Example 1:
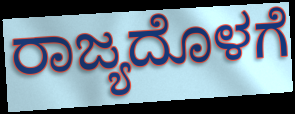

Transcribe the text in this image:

ರಾಜ್ಯದೊಳಗೆ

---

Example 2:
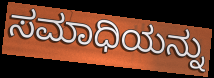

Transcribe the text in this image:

ಸಮಾಧಿಯನ್ನು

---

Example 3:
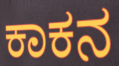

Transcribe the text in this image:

ಕಾಕನ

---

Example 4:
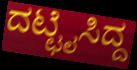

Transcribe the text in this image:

ದಟ್ಟೈಸಿದ್ದ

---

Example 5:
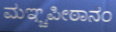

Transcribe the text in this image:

ಮಞ್ಚಪೀಠಾನಂ